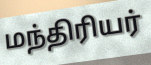
மந்திரியர்